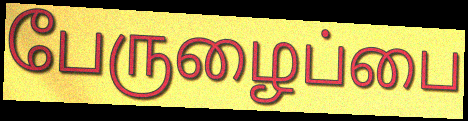
பேருழைப்பை